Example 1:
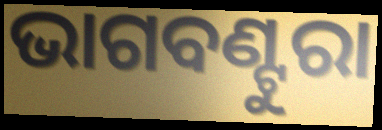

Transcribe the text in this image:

ଭାଗବଣ୍ଟୁରା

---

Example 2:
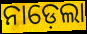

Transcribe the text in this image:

ନାଡ଼େଲା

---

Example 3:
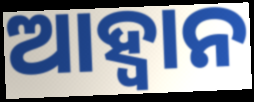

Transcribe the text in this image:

ଆହ୍ୱାନ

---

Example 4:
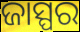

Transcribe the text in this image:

ଜାସ୍ପର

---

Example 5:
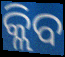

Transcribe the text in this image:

କ୍ଲିବ